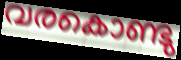
വരകൊണ്ടു